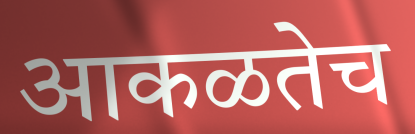
आकळतेच